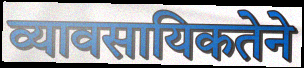
व्यावसायिकतेने